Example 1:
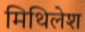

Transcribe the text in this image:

मिथिलेश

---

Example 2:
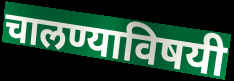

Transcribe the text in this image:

चालण्याविषयी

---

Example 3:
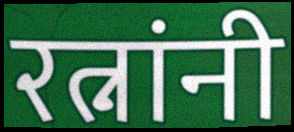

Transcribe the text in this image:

रत्नांनी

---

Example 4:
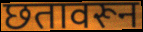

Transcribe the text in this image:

छतावरून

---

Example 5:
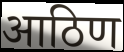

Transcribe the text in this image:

आठिण